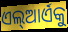
ଏଲ୍ଆର୍ଏକୁ